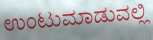
ಉಂಟುಮಾಡುವಲ್ಲಿ